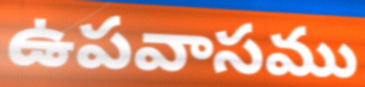
ఉపవాసము